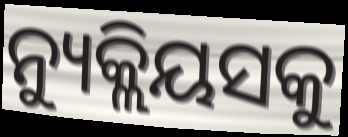
ନ୍ୟୁକ୍ଲିୟସକୁ